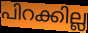
പിറക്കില്ല